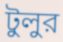
টুলুর